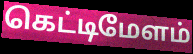
கெட்டிமேளம்